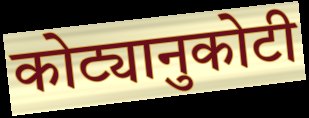
कोट्यानुकोटी